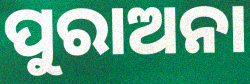
ପୁରାଅନା